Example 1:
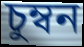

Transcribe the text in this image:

চুম্বন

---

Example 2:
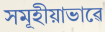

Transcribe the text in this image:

সমূহীয়াভাৱে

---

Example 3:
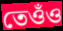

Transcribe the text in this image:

তেওঁও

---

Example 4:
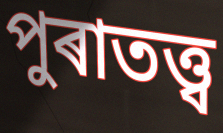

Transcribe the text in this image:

পুৰাতত্ত্ব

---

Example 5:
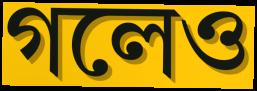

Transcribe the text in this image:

গলেও